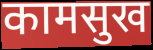
कामसुख